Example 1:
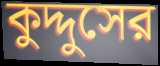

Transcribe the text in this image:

কুদ্দুসের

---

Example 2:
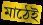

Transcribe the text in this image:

মাঠেই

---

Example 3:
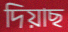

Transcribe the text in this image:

দিয়াছ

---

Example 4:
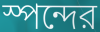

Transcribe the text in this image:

স্পন্দের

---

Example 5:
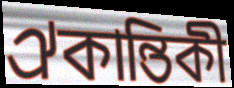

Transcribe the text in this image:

ঐকান্তিকী